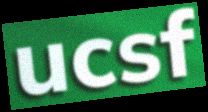
ucsf